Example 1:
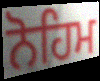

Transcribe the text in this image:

ਨੋਹਿਮ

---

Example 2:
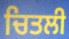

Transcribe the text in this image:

ਚਿਤਲੀ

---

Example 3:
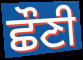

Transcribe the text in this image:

ਛੌਣੀ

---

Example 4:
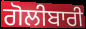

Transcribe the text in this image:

ਗੋਲੀਬਾਰੀ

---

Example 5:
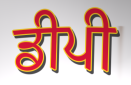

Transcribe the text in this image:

ਡੀਪੀ